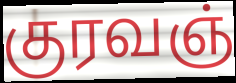
குரவஞ்